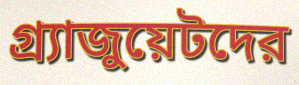
গ্র্যাজুয়েটদের